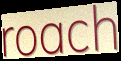
roach